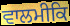
ਵਾਲਮੀਕਿ